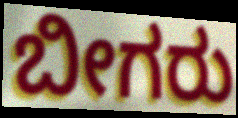
ಬೀಗರು